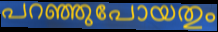
പറഞ്ഞുപോയതും